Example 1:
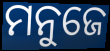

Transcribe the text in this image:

ମନୁଜେ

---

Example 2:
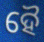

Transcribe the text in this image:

ହୈ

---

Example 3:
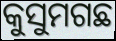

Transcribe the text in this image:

କୁସୁମଗଛ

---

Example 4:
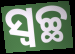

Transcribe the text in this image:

ସ୍ୱଚ୍ଛ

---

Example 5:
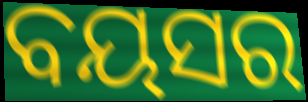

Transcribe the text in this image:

ବୟସର